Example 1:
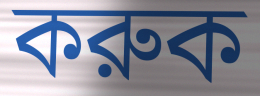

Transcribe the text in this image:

করুক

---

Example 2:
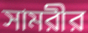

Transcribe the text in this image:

সামরীর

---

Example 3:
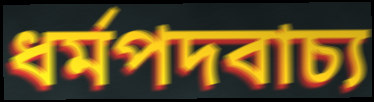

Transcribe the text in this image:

ধর্মপদবাচ্য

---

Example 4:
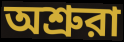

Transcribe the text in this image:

অশ্রুরা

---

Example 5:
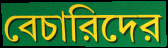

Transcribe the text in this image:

বেচারিদের